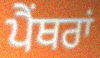
ਪੈਂਥਰਾਂ